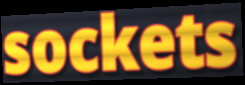
sockets